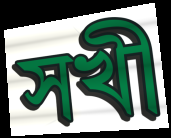
সখী